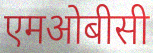
एमओबीसी